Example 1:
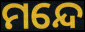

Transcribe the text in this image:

ମନ୍ଦେ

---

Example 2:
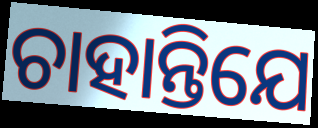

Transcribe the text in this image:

ଚାହାନ୍ତିଯେ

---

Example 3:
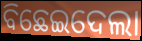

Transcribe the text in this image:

ବିଛେଇଦେଲା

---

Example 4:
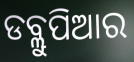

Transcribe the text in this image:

ଡବ୍ଲୁପିଆର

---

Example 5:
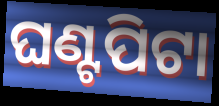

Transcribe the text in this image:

ଘଣ୍ଟପିଟା